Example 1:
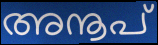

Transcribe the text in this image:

അനൂപ്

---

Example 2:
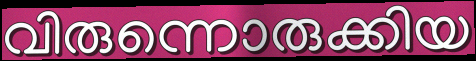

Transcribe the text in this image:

വിരുന്നൊരുക്കിയ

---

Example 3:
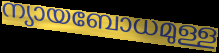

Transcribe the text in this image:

ന്യായബോധമുള്ള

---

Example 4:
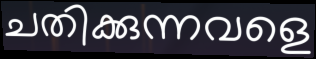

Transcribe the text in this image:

ചതിക്കുന്നവളെ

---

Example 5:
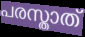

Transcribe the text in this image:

പരസ്താത്